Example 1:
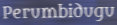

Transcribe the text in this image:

Perumbidugu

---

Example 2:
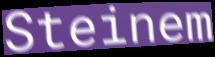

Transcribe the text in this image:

Steinem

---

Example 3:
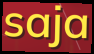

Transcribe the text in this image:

saja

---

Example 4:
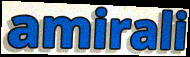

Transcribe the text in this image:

amirali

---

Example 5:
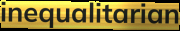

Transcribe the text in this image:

inequalitarian